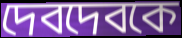
দেবদেবকে